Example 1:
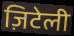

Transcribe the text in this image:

ज़िटेली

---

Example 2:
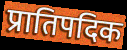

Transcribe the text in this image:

प्रातिपदिक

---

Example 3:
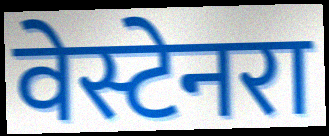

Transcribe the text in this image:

वेस्टेनरा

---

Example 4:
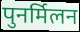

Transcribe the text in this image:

पुनर्मिलन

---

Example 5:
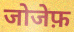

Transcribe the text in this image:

जोजेफ़